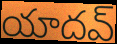
యాదవ్